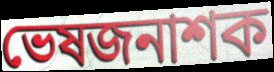
ভেষজনাশক